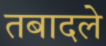
तबादले